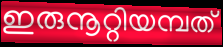
ഇരുനൂറ്റിയമ്പത്